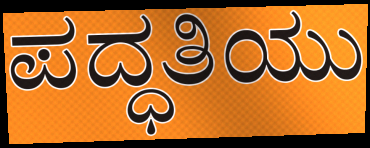
ಪದ್ಧತಿಯು